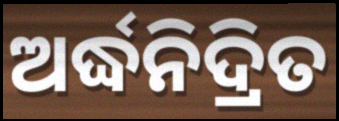
ଅର୍ଦ୍ଧନିଦ୍ରିତ